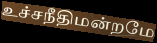
உச்சநீதிமன்றமே